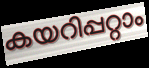
കയറിപ്പറ്റാം